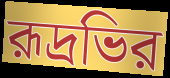
রূদ্রভির